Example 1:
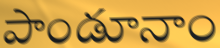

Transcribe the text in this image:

పాండూనాం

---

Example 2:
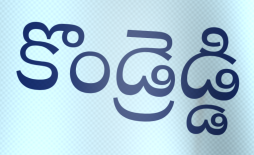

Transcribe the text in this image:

కొండ్రెడ్డి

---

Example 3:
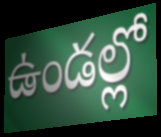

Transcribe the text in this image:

ఉండల్లో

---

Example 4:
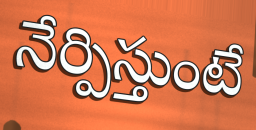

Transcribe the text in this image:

నేర్పిస్తుంటే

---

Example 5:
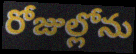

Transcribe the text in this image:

రోజుల్లోను